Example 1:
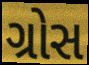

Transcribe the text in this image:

ગ્રોસ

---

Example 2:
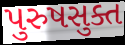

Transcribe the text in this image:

પુરુષસુક્ત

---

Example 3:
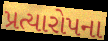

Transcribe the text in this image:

પ્રત્યારોપના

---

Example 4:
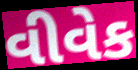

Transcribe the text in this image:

વીવેક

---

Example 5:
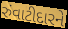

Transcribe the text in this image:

રુંવાટીદારને